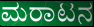
ಮರಾಟನ